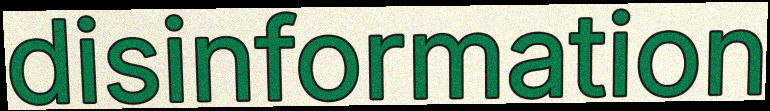
disinformation